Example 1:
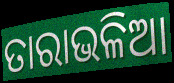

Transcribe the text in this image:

ତାରାଭଳିଆ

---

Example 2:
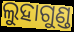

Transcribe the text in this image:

ଲୁହାଗୁଣ୍ଡ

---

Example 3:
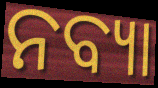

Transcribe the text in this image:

ନବ୍ୟା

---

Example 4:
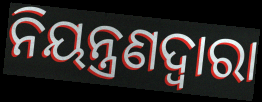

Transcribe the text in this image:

ନିୟନ୍ତ୍ରଣଦ୍ବାରା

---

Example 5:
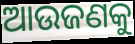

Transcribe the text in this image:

ଆଉଜଣକୁ